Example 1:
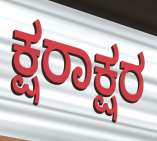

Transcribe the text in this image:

ಕ್ಷರಾಕ್ಷರ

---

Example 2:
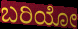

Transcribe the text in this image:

ಬರಿಯೋ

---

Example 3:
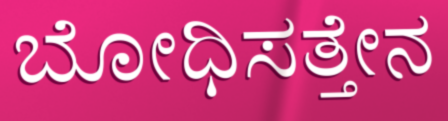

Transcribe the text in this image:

ಬೋಧಿಸತ್ತೇನ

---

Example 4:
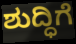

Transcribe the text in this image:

ಶುದ್ಧಿಗೆ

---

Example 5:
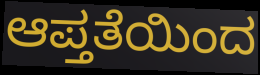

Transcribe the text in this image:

ಆಪ್ತತೆಯಿಂದ